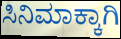
ಸಿನಿಮಾಕ್ಕಾಗಿ